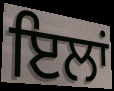
ਇਲਾਂ